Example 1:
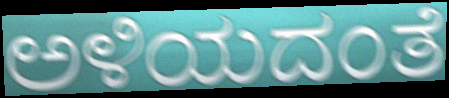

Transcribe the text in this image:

ಅಳಿಯದಂತೆ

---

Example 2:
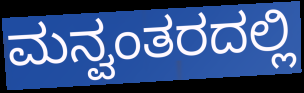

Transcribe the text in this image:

ಮನ್ವಂತರದಲ್ಲಿ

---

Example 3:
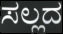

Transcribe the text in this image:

ಸಲ್ಲದ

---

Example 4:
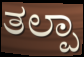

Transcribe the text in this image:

ತಲ್ಪಾ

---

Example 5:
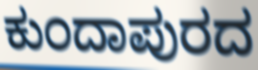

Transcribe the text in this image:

ಕುಂದಾಪುರದ